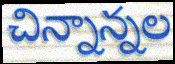
చిన్నాన్నల